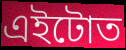
এইটোত